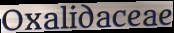
Oxalidaceae